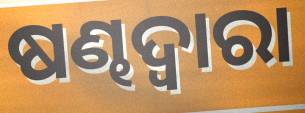
ଷଣ୍ଢଦ୍ୱାରା